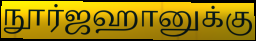
நூர்ஜஹானுக்கு